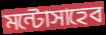
মন্টোসাহেব